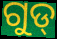
ଗୁଡ୍